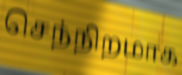
செந்நிறமாக